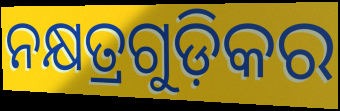
ନକ୍ଷତ୍ରଗୁଡ଼ିକର